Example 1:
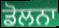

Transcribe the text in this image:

ਡੋਲਨਾ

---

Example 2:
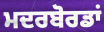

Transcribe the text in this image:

ਮਦਰਬੋਰਡਾਂ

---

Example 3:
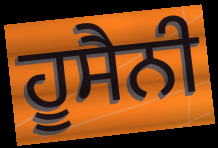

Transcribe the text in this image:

ਹੂਸੈਨੀ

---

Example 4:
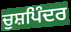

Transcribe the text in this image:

ਚੁਸ਼ਪਿੰਦਰ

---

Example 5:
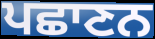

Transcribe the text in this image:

ਪਛਾਣਨ